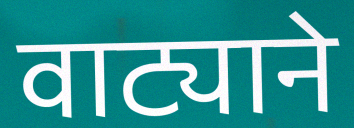
वाट्याने